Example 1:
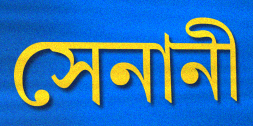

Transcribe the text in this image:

সেনানী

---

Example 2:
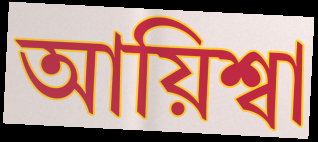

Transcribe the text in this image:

আয়িশ্বা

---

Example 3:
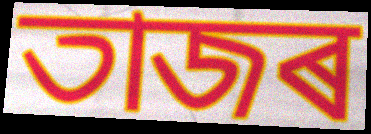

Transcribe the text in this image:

তাজৰ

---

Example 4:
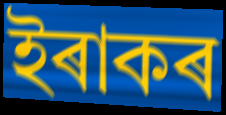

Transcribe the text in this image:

ইৰাকৰ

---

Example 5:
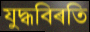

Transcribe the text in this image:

যুদ্ধবিৰতি